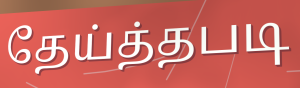
தேய்த்தபடி